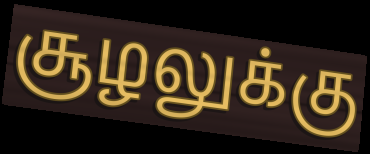
சூழலுக்கு